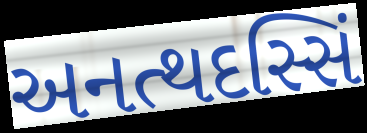
અનત્થદસ્સિં